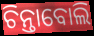
ଚିନ୍ତାବୋଲି